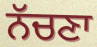
ਨੱਚਣਾ